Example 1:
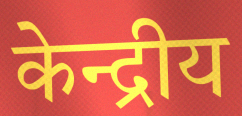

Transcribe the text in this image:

केन्‍द्रीय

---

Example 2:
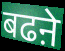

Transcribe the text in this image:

बढऩे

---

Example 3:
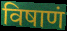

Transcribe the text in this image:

विषाणं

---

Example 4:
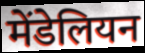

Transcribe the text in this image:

मेंडेलियन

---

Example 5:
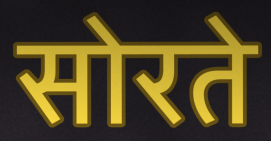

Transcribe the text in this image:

सोरते